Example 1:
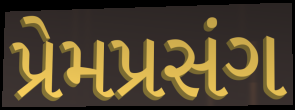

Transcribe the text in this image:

પ્રેમપ્રસંગ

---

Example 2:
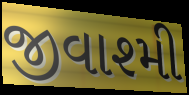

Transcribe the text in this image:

જીવાશ્મી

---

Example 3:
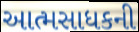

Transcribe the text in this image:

આત્મસાધકની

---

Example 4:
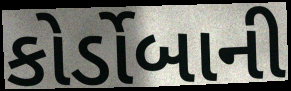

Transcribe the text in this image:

કોર્ડોબાની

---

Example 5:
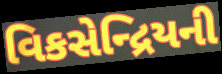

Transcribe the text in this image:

વિકસેન્દ્રિયની